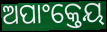
ଅପାଂକ୍ତେୟ